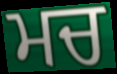
ਮਚ